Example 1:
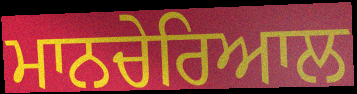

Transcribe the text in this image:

ਮਾਨਚੇਰਿਆਲ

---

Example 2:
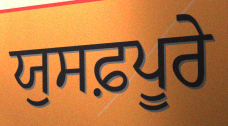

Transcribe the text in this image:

ਯੁਸਫ਼ਪੂਰੇ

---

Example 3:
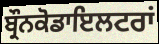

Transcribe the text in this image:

ਬ੍ਰੌਨਕੋਡਾਇਲਟਰਾਂ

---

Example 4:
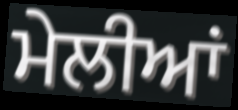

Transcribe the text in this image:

ਮੇਲੀਆਂ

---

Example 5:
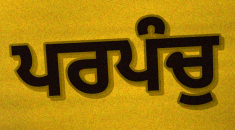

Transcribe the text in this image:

ਪਰਪੰਚੁ